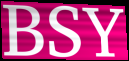
BSY